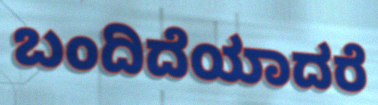
ಬಂದಿದೆಯಾದರೆ